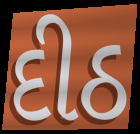
દીઠ